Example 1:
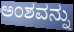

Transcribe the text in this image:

ಅಂಶವನ್ನು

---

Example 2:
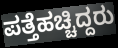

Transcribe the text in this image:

ಪತ್ತೆಹಚ್ಚಿದ್ದರು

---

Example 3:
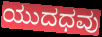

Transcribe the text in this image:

ಯುದಧವು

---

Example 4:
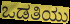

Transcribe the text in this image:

ಒಡತಿಯು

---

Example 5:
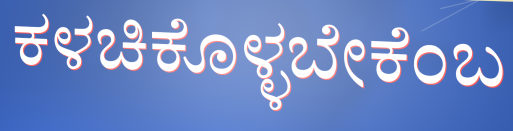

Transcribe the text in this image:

ಕಳಚಿಕೊಳ್ಳಬೇಕೆಂಬ